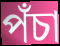
পঁচা